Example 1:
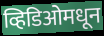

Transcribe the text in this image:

व्हिडिओमधून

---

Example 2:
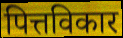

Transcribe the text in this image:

पित्तविकार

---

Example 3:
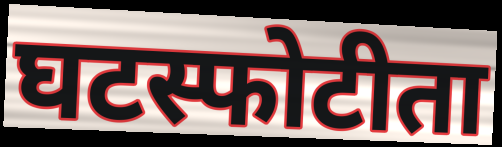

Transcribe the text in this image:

घटस्फोटीता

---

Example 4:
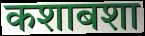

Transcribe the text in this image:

कशाबशा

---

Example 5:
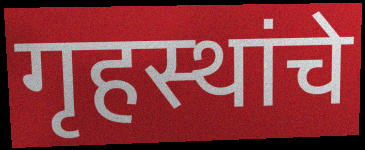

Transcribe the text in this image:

गृहस्थांचे